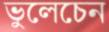
ভুলেচেন